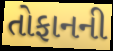
તોફાનની